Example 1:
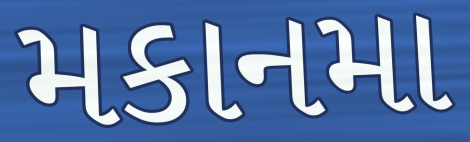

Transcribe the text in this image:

મકાનમા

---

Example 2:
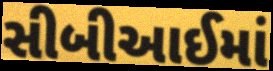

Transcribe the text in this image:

સીબીઆઈમાં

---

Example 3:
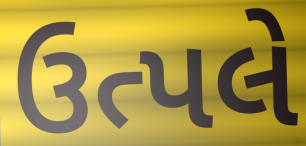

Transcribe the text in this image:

ઉત્પલે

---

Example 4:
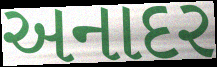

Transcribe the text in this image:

અનાદર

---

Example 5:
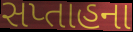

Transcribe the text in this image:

સપ્તાહના